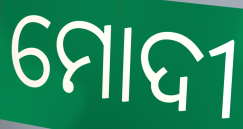
ମୋଦୀ